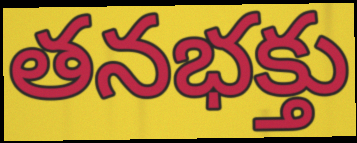
తనభక్తు